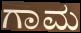
ಗಾಮ